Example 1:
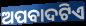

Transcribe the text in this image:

ଅପବାଦଟିଏ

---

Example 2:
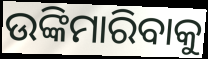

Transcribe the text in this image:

ଉଙ୍କିମାରିବାକୁ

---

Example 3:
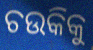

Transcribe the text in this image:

ଚଉକିକୁ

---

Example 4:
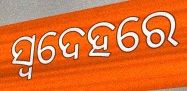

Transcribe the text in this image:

ସ୍ଵଦେହରେ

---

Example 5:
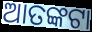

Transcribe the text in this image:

ଆତଙ୍କଟା